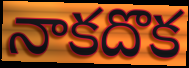
నాకదొక